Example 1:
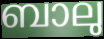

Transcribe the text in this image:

ബാലു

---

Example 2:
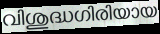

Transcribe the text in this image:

വിശുദ്ധഗിരിയായ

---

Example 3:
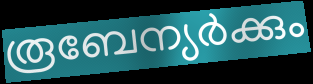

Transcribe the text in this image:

രൂബേന്യർക്കും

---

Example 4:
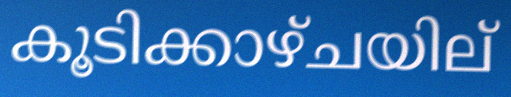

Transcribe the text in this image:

കൂടിക്കാഴ്ചയില്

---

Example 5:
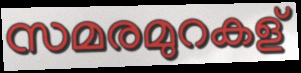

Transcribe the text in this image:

സമരമുറകള്